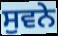
ਸੁਵਨੇ